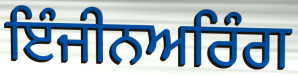
ਇੰਜੀਨਅਰਿੰਗ